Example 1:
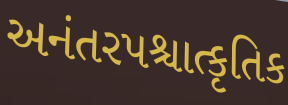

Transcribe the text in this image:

અનંતરપશ્ચાત્કૃતિક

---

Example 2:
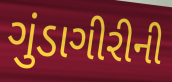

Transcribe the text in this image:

ગુંડાગીરીની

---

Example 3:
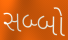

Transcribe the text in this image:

સબ્બો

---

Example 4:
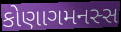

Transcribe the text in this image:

કોણાગમનસ્સ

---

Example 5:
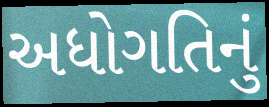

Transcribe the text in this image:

અધોગતિનું